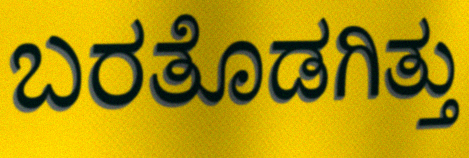
ಬರತೊಡಗಿತ್ತು